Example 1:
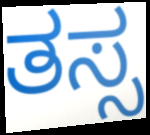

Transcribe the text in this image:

ತಸ್ಸ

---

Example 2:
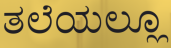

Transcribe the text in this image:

ತಲೆಯಲ್ಲೂ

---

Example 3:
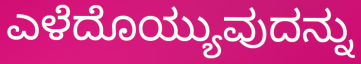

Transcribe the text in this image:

ಎಳೆದೊಯ್ಯುವುದನ್ನು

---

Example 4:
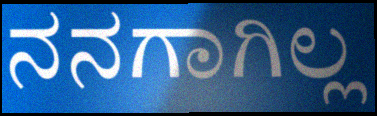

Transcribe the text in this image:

ನನಗಾಗಿಲ್ಲ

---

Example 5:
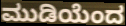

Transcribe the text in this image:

ಮುಡಿಯೆಂದ